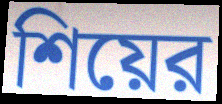
শিয়ের